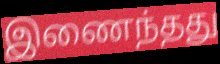
இணைந்தது